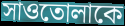
সাওতোলাকে